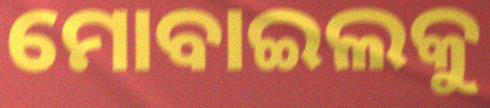
ମୋବାଇଲକୁ